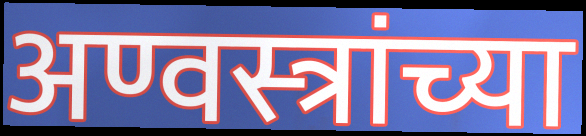
अण्वस्त्रांच्या